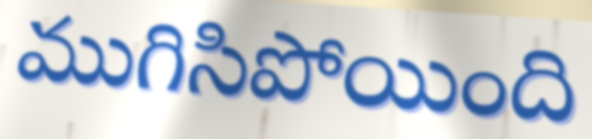
ముగిసిపోయింది